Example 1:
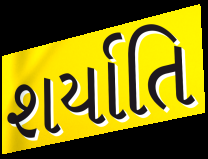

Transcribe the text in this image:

શર્યાતિ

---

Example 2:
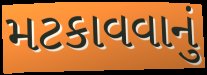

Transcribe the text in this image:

મટકાવવાનું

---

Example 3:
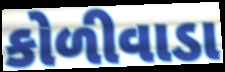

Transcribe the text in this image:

કોળીવાડા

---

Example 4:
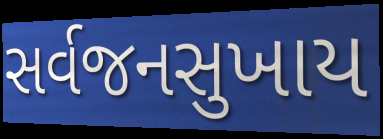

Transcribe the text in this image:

સર્વજનસુખાય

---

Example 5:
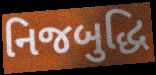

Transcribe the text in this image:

નિજબુદ્ધિ